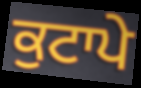
ਕੁਟਾਪੇ